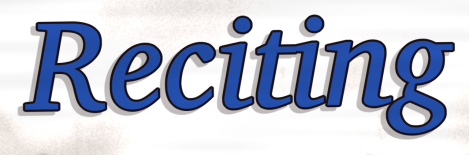
Reciting